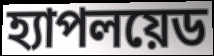
হ্যাপলয়েড